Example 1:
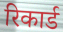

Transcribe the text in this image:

रिकार्ड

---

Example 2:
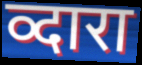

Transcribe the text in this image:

व्दारा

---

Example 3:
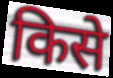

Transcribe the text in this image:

किसे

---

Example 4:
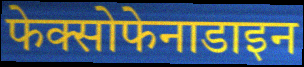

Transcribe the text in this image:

फेक्सोफेनाडाइन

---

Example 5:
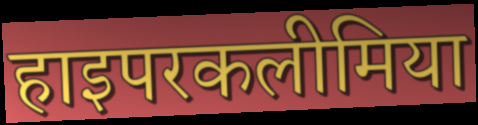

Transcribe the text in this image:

हाइपरकलीमिया